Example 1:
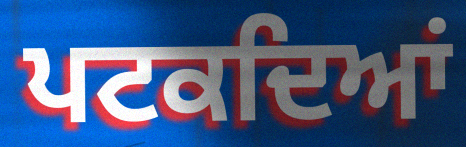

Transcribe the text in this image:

ਪਟਕਦਿਆਂ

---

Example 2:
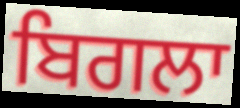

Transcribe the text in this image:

ਬਿਗਲਾ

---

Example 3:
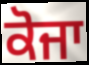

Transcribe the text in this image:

ਕੋਜਾ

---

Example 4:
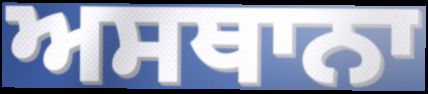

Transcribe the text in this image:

ਅਸਥਾਨਾ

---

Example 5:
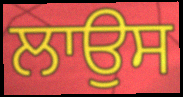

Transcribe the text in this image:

ਲਾਉਸ